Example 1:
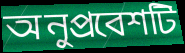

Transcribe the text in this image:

অনুপ্রবেশটি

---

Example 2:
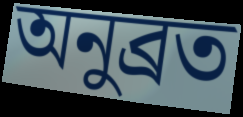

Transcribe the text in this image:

অনুব্রত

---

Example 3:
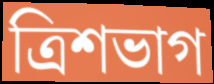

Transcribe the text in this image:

ত্রিশভাগ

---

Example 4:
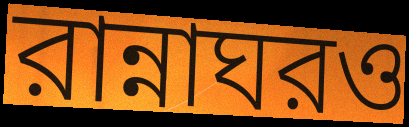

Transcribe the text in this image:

রান্নাঘরও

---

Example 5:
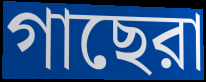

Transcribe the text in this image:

গাছেরা